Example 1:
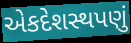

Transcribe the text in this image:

એકદેશસ્થપણું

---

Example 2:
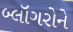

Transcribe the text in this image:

બ્લૉગરોને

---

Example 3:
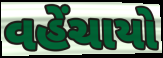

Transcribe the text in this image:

વહેંચાયો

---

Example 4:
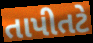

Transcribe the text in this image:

તાપીતટે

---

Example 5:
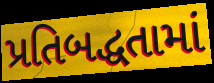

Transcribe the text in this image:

પ્રતિબદ્ધતામાં